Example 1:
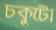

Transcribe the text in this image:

চকুটো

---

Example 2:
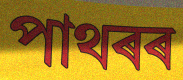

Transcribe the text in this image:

পাথৰৰ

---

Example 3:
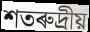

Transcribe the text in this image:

শতৰুদ্ৰীয়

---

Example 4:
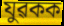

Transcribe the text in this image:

যুৱকক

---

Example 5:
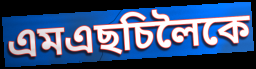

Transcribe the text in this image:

এমএছচিলৈকে